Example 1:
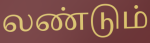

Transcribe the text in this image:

லண்டும்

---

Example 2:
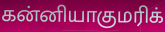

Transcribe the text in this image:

கன்னியாகுமரிக்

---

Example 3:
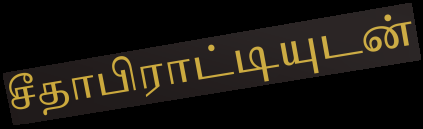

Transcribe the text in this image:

சீதாபிராட்டியுடன்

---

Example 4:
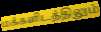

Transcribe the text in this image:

மக்களிடத்திலும்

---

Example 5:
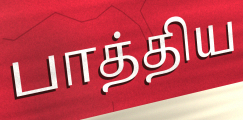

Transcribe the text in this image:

பாத்திய